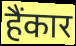
हैंकार